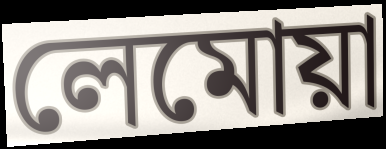
লেমোয়া